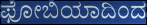
ಫೋಬಿಯಾದಿಂದ